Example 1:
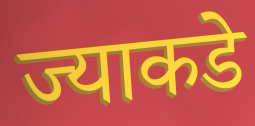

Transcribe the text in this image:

ज्याकडे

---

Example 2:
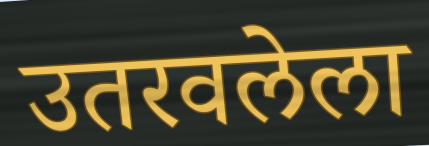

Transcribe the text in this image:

उतरवलेला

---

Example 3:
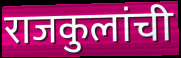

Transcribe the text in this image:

राजकुलांची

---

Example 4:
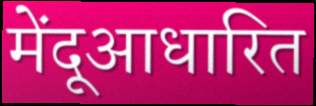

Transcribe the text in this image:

मेंदूआधारित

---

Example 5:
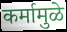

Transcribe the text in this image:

कर्मामुळे